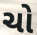
ચો